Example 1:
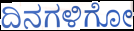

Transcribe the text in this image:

ದಿನಗಳಿಗೋ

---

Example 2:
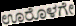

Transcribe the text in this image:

ಊರೊಳಗೇ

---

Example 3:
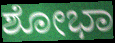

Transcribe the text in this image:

ಶೋಭಾ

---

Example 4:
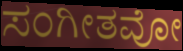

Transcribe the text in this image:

ಸಂಗೀತವೋ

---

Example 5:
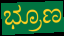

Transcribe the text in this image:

ಭ್ರೂಣ